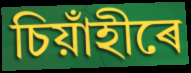
চিয়াঁহীৰে